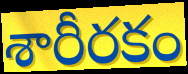
శారీరకం